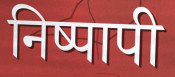
निष्पापी